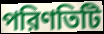
পরিণতিটি